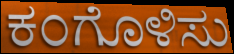
ಕಂಗೊಳಿಸು